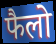
फैलो